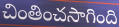
చింతించసాగింది